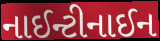
નાઈન્ટીનાઈન